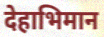
देहाभिमान